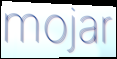
mojar